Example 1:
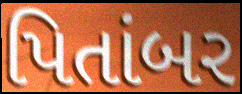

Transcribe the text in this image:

પિતાંબર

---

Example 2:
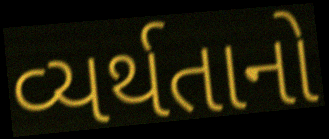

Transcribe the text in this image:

વ્યર્થતાનો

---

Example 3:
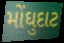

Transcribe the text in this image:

મોંઘુદાટ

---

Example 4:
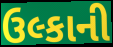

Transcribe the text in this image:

ઉલ્કાની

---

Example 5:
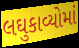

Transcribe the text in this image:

લઘુકાવ્યોમાં